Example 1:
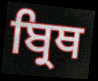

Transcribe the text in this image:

ਬ੍ਰਿਥ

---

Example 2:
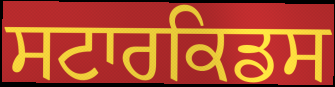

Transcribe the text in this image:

ਸਟਾਰਕਿਡਸ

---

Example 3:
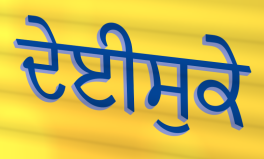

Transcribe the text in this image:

ਦੇਈਸੁਕੇ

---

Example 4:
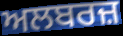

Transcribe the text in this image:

ਅਲਬਰਜ਼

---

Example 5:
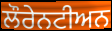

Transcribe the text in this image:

ਲੌਰੇਨਟੀਅਨ